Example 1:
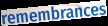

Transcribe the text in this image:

remembrances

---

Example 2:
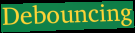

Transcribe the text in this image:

Debouncing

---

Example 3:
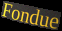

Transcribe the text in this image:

Fondue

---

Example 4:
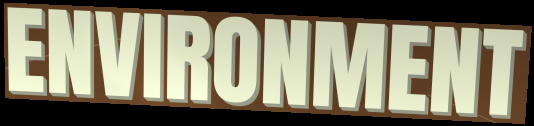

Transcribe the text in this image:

ENVIRONMENT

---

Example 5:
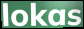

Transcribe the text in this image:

lokas